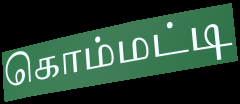
கொம்மட்டி